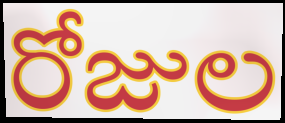
రోజుల